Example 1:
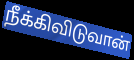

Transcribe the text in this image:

நீக்கிவிடுவான்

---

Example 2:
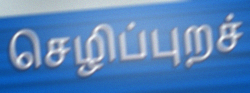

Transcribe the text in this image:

செழிப்புறச்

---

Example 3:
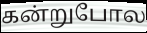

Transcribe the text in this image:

கன்றுபோல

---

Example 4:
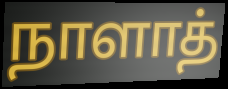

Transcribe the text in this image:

நாளாத்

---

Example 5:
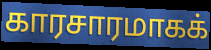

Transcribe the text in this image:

காரசாரமாகக்